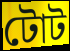
টোট